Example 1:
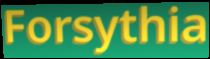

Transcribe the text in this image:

Forsythia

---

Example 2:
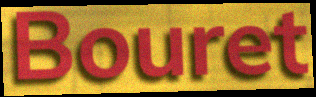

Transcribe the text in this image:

Bouret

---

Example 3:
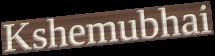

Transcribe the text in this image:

Kshemubhai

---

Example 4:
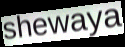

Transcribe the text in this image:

shewaya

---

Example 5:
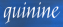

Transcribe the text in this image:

quinine